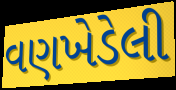
વણખેડેલી